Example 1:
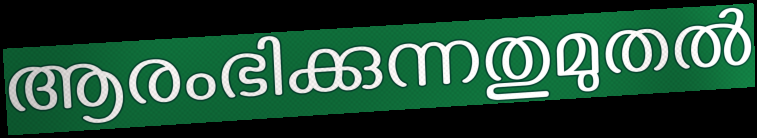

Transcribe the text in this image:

ആരംഭിക്കുന്നതുമുതൽ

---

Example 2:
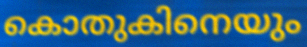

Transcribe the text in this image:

കൊതുകിനെയും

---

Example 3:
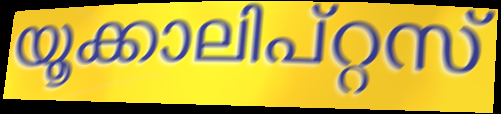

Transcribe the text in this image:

യൂക്കാലിപ്റ്റസ്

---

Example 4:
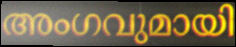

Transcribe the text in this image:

അംഗവുമായി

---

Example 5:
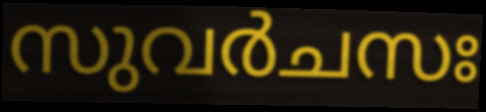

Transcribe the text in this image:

സുവർചസഃ